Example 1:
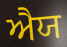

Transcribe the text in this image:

ਐਯ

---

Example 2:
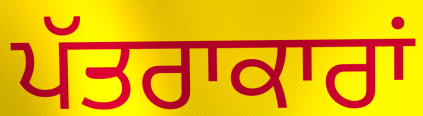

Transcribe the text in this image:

ਪੱਤਰਾਕਾਰਾਂ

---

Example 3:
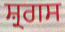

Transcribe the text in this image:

ਸ਼੍ਰਗਸ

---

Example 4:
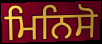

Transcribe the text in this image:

ਮਿਨਿਸੋ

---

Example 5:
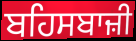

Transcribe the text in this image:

ਬਹਿਸਬਾਜ਼ੀ